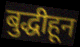
बुद्धीहून